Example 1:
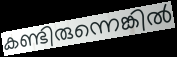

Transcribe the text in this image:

കണ്ടിരുന്നെങ്കിൽ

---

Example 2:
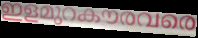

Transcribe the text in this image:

ഇളമുറകൗരവരെ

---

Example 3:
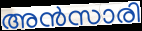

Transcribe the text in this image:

അൻസാരി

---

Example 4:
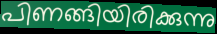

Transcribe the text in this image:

പിണങ്ങിയിരിക്കുന്നു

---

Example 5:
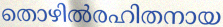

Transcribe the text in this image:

തൊഴിൽരഹിതനായ